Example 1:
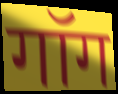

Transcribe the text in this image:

गॉग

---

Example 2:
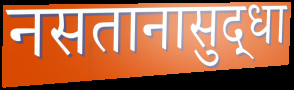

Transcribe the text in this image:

नसतानासुद्धा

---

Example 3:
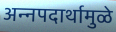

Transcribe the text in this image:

अन्नपदार्थामुळे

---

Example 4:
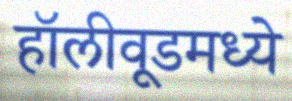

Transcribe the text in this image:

हॉलीवूडमध्ये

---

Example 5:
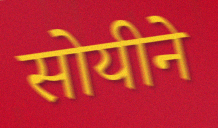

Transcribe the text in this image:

सोयीने